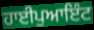
ਹਾਈਪੁਆਇੰਟ